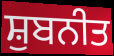
ਸ਼ੁਬਨੀਤ